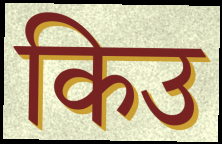
किउ